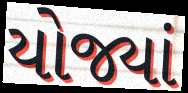
યોજ્યાં